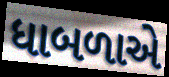
ધાબળાએ